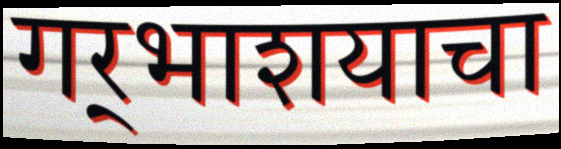
गर्भाशयाचा